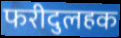
फरीदुलहक